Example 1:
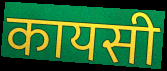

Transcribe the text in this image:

कायसी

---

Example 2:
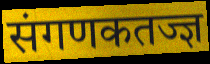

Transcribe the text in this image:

संगणकतज्ज्ञ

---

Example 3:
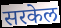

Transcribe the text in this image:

सरकेल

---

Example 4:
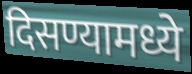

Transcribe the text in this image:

दिसण्यामध्ये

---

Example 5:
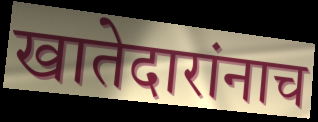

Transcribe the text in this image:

खातेदारांनाच